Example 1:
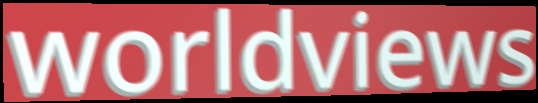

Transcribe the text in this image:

worldviews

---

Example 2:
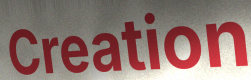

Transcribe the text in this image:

Creation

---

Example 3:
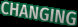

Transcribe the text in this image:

CHANGING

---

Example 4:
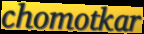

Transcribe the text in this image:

chomotkar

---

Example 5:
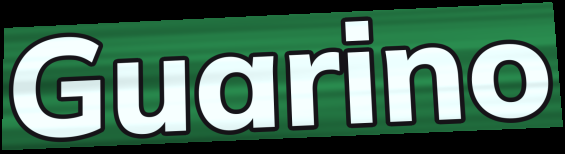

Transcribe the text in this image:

Guarino